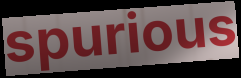
spurious